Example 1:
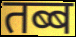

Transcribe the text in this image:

तब्ब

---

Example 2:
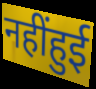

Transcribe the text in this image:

नहींहुई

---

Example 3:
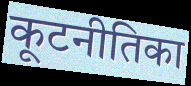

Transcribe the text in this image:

कूटनीतिका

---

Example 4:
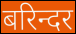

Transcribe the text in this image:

बरिन्दर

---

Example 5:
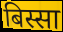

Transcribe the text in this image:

बिस्सा